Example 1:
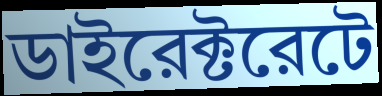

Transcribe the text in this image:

ডাইরেক্টরেটে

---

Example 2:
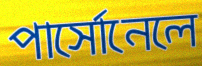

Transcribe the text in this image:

পার্সোনেলে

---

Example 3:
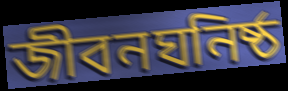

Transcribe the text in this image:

জীবনঘনিষ্ঠ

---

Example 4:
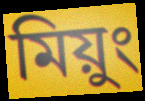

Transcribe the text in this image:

মিয়ুং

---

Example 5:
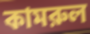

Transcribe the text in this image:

কামরুল